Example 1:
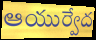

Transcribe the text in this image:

ఆయుర్వేద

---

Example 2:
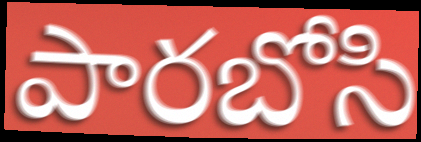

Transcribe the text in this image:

పారబోసి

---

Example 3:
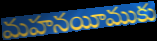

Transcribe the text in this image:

మహనయీముకు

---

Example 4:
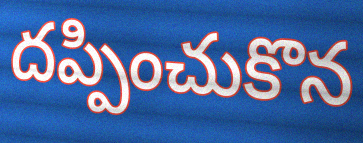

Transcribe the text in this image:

దప్పించుకొన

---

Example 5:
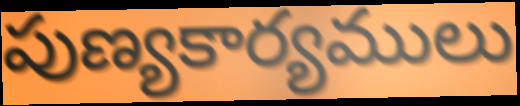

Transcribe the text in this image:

పుణ్యకార్యములు